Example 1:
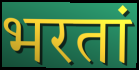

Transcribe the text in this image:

भरतां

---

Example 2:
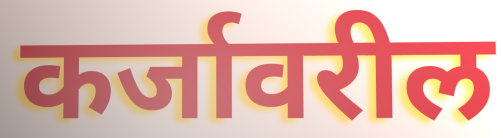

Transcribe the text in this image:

कर्जावरील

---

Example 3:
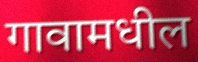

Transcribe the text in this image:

गावामधील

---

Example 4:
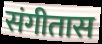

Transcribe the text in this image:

संगीतास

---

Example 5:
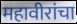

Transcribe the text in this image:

महावीरांचा